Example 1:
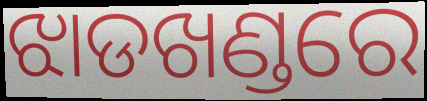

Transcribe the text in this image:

ଝାଡଖଣ୍ଡରେ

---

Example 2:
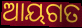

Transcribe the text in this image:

ଆୟଗତ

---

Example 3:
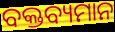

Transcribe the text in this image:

ବକ୍ତବ୍ୟମାନ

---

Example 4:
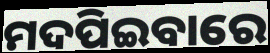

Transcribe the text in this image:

ମଦପିଇବାରେ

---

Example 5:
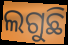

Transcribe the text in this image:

ଲଗୁଛି